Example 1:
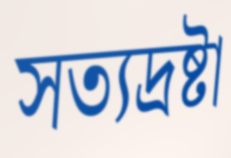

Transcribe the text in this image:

সত্যদ্রষ্টা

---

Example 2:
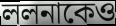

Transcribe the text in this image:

ললনাকেও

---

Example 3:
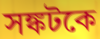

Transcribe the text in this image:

সঙ্কটকে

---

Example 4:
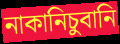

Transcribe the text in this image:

নাকানিচুবানি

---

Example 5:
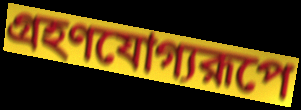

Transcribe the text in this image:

গ্রহণযোগ্যরূপে